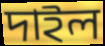
দাইল